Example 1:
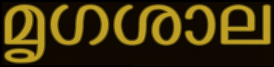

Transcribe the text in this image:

മൃഗശാല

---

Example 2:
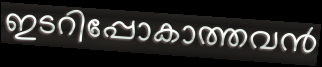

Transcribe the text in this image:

ഇടറിപ്പോകാത്തവൻ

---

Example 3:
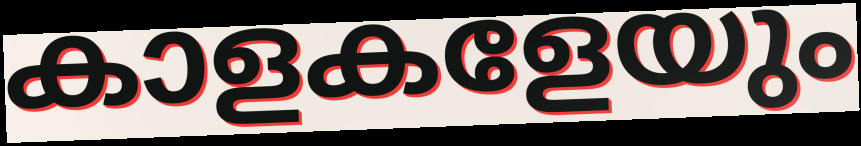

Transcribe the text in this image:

കാളകളേയും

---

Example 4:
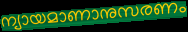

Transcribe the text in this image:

ന്യായമാണാനുസരണം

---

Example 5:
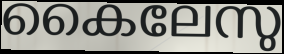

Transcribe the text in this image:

കൈലേസു